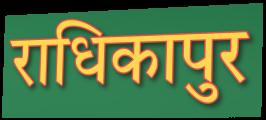
राधिकापुर